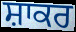
ਸ਼ਾਕਰ